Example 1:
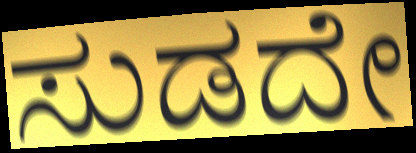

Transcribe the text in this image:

ಸುಡದೇ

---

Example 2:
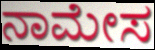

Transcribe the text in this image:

ನಾಮೇಸ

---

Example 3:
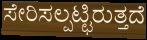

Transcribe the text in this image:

ಸೇರಿಸಲ್ಪಟ್ಟಿರುತ್ತದೆ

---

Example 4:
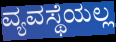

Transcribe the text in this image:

ವ್ಯವಸ್ಥೆಯಲ್ಲ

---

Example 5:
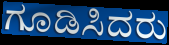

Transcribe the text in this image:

ಗೂಡಿಸಿದರು